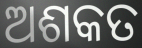
ଅଶକତ